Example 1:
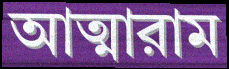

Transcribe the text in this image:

আত্মারাম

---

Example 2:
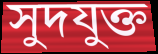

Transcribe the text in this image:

সুদযুক্ত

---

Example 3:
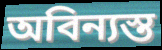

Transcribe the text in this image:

অবিন্যস্ত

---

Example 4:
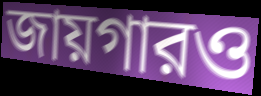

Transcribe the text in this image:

জায়গারও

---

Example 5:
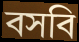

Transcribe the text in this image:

বসবি